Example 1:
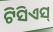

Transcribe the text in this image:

ଟିସିଏସ୍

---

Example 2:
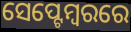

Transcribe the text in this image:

ସେପ୍ଟେମ୍ୱରରେ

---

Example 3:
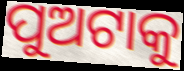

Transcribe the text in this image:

ପୁଅଟାକୁ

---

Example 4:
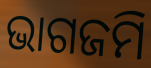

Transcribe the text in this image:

ଭାଗଜମି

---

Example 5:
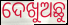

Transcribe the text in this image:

ଦେଖୁଅଛୁ